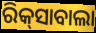
ରିକ୍‌ସାବାଲା